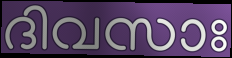
ദിവസാഃ